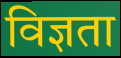
विज्ञता